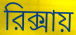
রিক্সায়